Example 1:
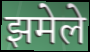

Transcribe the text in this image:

झमेले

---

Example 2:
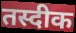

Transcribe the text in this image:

तस्दीक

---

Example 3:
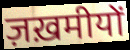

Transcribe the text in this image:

ज़ख़मीयों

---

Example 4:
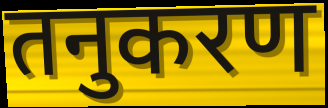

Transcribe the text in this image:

तनुकरण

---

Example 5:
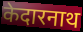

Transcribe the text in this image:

केदारनाथ